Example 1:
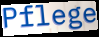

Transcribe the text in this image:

Pflege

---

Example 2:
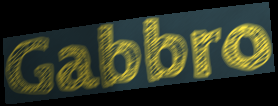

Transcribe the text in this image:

Gabbro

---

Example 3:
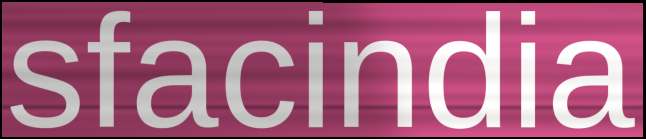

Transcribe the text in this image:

sfacindia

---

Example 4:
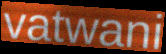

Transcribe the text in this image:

vatwani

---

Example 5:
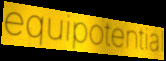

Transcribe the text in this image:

equipotential